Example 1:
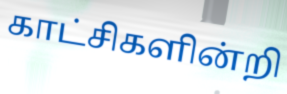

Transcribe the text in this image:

காட்சிகளின்றி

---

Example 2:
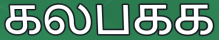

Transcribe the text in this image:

கலபகக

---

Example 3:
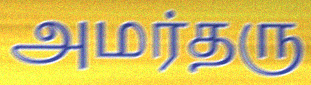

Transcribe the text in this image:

அமர்தரு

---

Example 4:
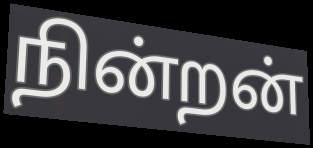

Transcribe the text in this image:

நின்றன்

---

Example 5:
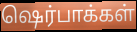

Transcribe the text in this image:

ஷெர்பாக்கள்